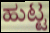
ಹುಟ್ಟ